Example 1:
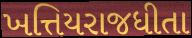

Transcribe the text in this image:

ખત્તિયરાજધીતા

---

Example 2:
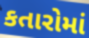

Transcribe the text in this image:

કતારોમાં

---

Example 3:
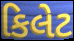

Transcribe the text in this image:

કિલેટ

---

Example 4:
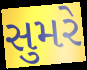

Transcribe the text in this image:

સુમરે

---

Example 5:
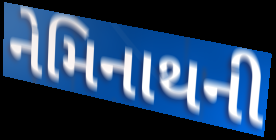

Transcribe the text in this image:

નેમિનાથની